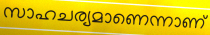
സാഹചര്യമാണെന്നാണ്